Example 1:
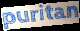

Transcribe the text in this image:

puritan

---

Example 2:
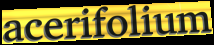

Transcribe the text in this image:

acerifolium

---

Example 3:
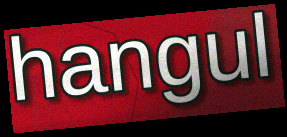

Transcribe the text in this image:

hangul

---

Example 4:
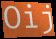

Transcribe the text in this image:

Oij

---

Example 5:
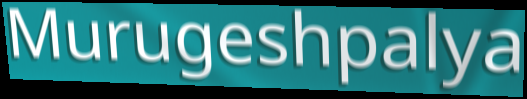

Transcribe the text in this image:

Murugeshpalya